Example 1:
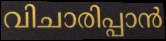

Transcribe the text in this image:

വിചാരിപ്പാൻ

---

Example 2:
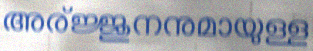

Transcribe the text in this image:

അര്ജ്ജുനനുമായുള്ള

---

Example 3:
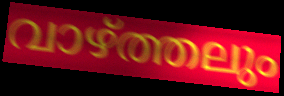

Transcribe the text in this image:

വാഴ്ത്തലും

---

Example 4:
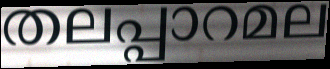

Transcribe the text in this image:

തലപ്പാറമല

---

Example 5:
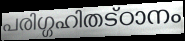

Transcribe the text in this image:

പരിഗ്ഗഹിതട്ഠാനം